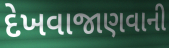
દેખવાજાણવાની